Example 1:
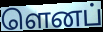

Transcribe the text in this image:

ளெனப்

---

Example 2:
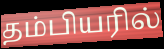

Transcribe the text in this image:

தம்பியரில்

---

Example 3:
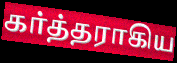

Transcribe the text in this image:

கர்த்தராகிய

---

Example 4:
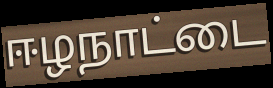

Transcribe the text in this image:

ஈழநாட்டை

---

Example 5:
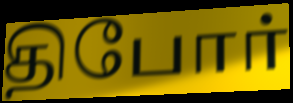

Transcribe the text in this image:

திபோர்